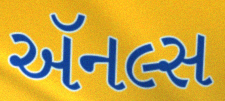
ઍનલ્સ